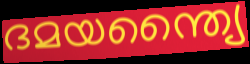
ദമയന്ത്യൈ